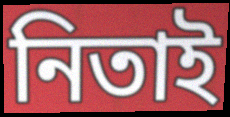
নিতাই